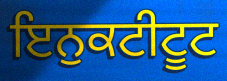
ਇਨੁਕਟੀਟੂਟ